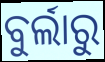
ବୁର୍ଲାରୁ